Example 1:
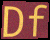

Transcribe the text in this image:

Df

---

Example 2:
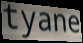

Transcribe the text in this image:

tyane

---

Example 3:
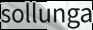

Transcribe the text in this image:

sollunga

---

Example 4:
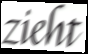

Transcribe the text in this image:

zieht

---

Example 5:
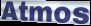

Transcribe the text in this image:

Atmos